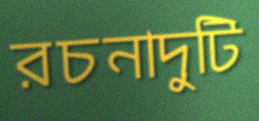
রচনাদুটি